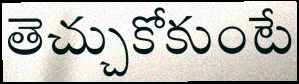
తెచ్చుకోకుంటే